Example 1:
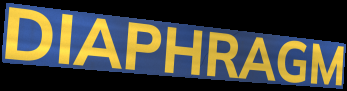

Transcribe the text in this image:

DIAPHRAGM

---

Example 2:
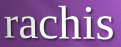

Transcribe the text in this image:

rachis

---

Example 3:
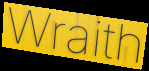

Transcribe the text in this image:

Wraith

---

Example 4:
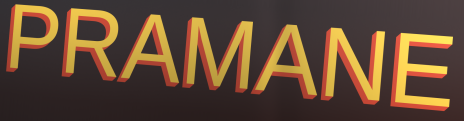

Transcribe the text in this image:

PRAMANE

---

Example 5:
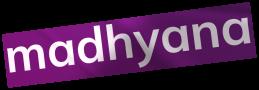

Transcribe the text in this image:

madhyana